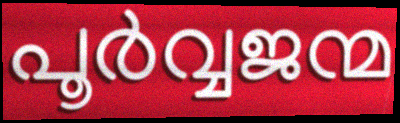
പൂർവ്വജന്മ